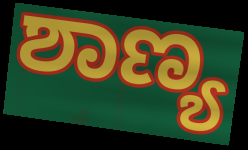
ಶಾಣ್ಯ